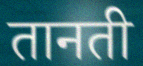
तानती